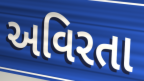
અવિરતા